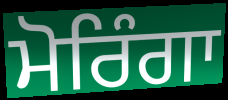
ਮੋਰਿੰਗਾ